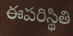
ఈపరిస్థితి